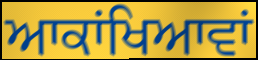
ਆਕਾਂਖਿਆਵਾਂ